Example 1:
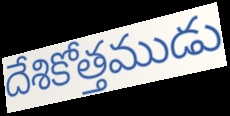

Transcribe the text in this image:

దేశికోత్తముడు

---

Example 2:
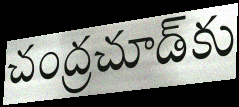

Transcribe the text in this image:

చంద్రచూడ్‌కు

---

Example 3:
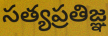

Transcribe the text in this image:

సత్యప్రతిజ్ఞ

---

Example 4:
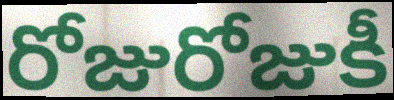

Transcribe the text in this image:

రోజురోజుకీ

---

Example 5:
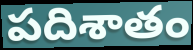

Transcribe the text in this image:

పదిశాతం